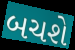
બચશે